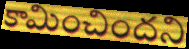
కామించిందని